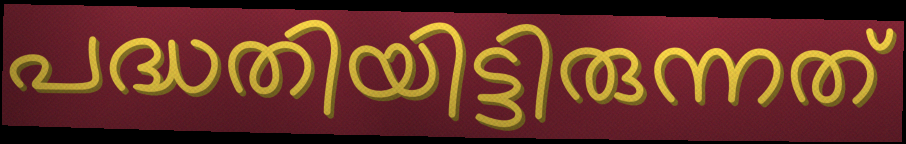
പദ്ധതിയിട്ടിരുന്നത്